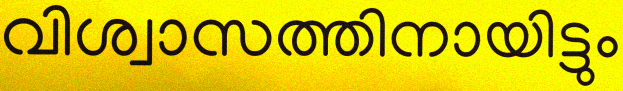
വിശ്വാസത്തിനായിട്ടും